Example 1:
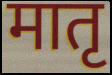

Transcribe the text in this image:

मातृ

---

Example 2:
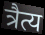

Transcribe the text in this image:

त्रैत्य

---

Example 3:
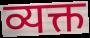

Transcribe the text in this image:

व्यक्त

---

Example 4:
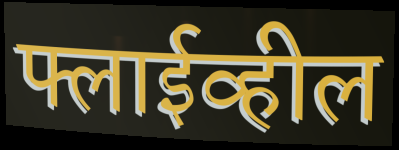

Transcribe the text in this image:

फ्लाईव्हील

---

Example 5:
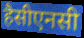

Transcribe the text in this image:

हैसीएनसी